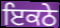
ਇਕਠੇ